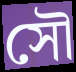
সৌ